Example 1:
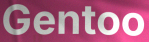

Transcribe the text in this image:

Gentoo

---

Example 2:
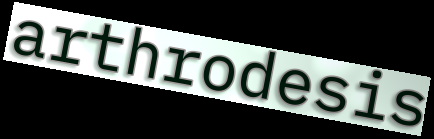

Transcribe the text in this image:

arthrodesis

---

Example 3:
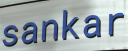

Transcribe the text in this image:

sankar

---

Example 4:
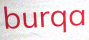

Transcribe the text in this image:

burqa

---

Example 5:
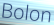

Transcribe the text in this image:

Bolon